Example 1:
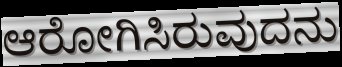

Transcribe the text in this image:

ಆರೋಗಿಸಿರುವುದನು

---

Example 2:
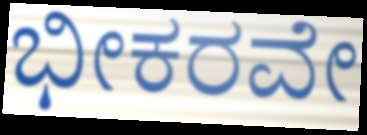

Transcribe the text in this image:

ಭೀಕರವೇ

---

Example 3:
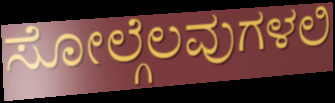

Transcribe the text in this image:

ಸೋಲ್ಗೆಲವುಗಳಲಿ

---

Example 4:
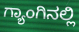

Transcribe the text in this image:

ಗ್ಯಾಂಗಿನಲ್ಲಿ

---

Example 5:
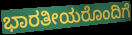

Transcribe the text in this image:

ಭಾರತೀಯರೊಂದಿಗೆ